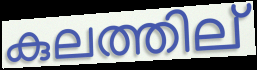
കുലത്തില്